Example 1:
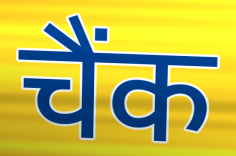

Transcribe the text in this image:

चैंक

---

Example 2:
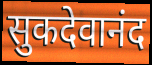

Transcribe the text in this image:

सुकदेवानंद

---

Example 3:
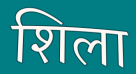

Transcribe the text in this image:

शिला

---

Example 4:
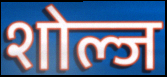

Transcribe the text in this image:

शोल्ज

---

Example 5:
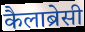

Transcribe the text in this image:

कैलाब्रेसी